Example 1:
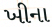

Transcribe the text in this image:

ખીના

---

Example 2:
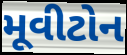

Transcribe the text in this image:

મૂવીટોન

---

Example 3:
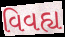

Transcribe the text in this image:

વિવહ્ય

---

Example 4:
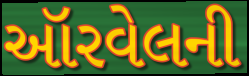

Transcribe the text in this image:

ઑરવેલની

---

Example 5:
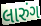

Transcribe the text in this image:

લારુંગ